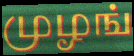
முழங்